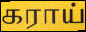
கராய்